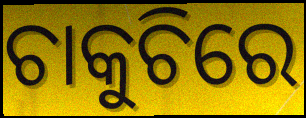
ଚାକୁଚିରେ